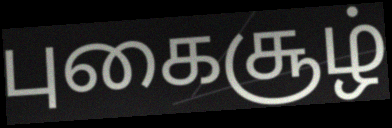
புகைசூழ்